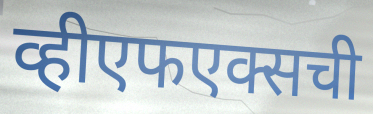
व्हीएफएक्सची